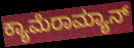
ಕ್ಯಾಮೆರಾಮ್ಯಾನ್